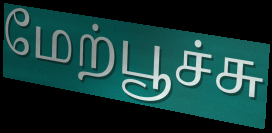
மேற்பூச்சு